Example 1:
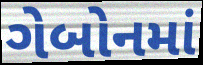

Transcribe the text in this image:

ગેબોનમાં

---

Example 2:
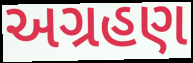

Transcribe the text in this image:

અગ્રહણ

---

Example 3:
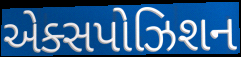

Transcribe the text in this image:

એક્સપોઝિશન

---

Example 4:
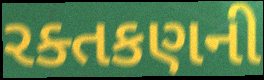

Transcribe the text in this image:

રક્તકણની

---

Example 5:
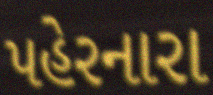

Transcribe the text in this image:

પહેરનારા